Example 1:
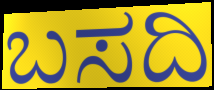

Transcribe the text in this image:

ಬಸದಿ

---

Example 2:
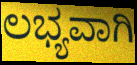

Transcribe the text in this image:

ಲಭ್ಯವಾಗಿ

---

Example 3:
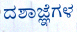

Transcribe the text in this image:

ದಶಾಜ್ಞೆಗಳ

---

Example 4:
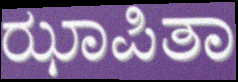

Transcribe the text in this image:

ಝಾಪಿತಾ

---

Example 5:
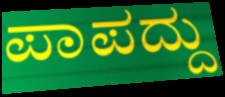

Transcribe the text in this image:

ಪಾಪದ್ದು